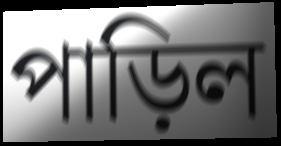
পাড়িল